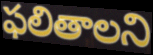
ఫలితాలని